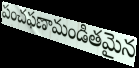
పంచఫణామండితమైన